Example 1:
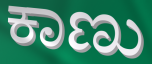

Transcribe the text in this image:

ಕಾಣು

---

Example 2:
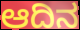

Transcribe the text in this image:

ಆದಿನ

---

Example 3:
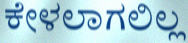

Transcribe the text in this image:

ಕೇಳಲಾಗಲಿಲ್ಲ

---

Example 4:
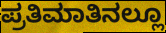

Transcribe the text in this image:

ಪ್ರತಿಮಾತಿನಲ್ಲೂ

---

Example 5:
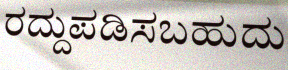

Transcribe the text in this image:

ರದ್ದುಪಡಿಸಬಹುದು